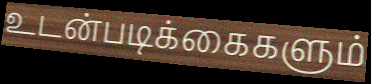
உடன்படிக்கைகளும்